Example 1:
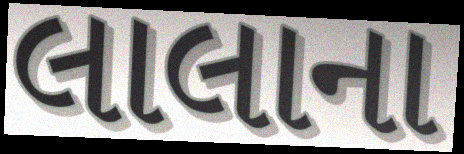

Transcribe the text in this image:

લાલાના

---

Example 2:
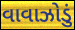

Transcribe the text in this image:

વાવાઝોડું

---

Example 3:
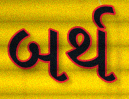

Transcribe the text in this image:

બર્થ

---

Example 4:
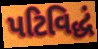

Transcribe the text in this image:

પટિવિદ્ધં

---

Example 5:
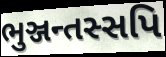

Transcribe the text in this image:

ભુઞ્જન્તસ્સપિ